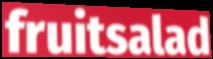
fruitsalad